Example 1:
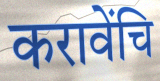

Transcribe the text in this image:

करावेंचि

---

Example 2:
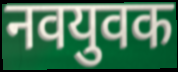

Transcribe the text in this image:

नवयुवक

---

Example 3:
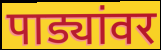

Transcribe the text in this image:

पाड्यांवर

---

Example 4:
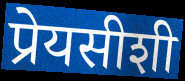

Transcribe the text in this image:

प्रेयसीशी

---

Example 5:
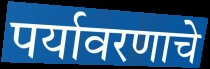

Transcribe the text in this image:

पर्यावरणाचे